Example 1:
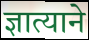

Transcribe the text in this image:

ज्ञात्याने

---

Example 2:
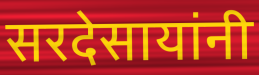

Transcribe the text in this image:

सरदेसायांनी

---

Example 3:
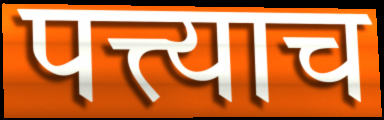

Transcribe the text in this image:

पत्त्याच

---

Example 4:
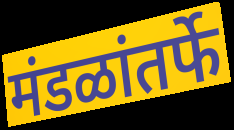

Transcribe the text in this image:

मंडळांतर्फे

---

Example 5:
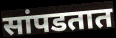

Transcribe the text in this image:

सांपडतात